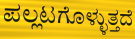
ಪಲ್ಲಟಗೊಳ್ಳುತ್ತದೆ